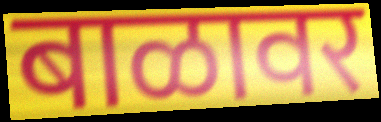
बाळावर